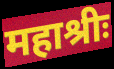
महाश्रीः